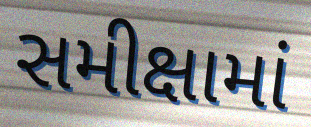
સમીક્ષામાં